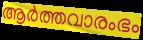
ആർത്തവാരംഭം